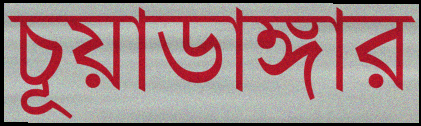
চূয়াডাঙ্গার